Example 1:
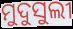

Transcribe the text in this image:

ମୁଦୁସୁଲୀ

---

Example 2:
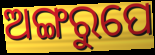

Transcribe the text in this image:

ଅଙ୍ଗରୁପେ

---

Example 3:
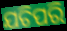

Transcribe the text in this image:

ଯଚିପରି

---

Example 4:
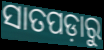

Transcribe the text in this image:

ସାତପଡ଼ାରୁ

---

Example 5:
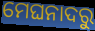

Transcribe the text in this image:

ମେଘନାଦରୁ